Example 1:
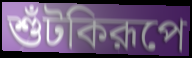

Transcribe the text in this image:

শুঁটকিরূপে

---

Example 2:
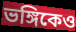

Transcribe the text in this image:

ভঙ্গিকেও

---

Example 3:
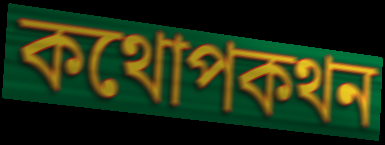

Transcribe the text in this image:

কথোপকথন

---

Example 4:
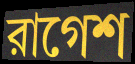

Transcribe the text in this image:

রাগেশ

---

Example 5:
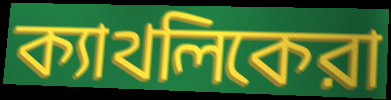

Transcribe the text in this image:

ক্যাথলিকেরা